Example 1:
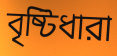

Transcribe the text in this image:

বৃষ্টিধারা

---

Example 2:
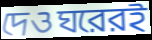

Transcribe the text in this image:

দেওঘরেরই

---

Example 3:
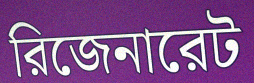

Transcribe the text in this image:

রিজেনারেট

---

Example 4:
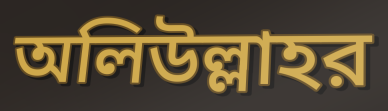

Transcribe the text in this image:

অলিউল্লাহর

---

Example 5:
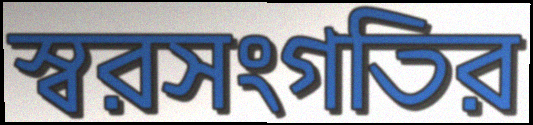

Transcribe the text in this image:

স্বরসংগতির